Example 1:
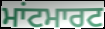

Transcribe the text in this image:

ਮਾਂਟਮਾਰਟ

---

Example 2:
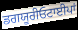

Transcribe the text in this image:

ਡਗਯੂਰੀਓਟਾਈਪਾਂ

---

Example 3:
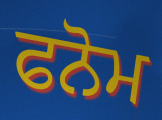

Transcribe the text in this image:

ਫਨੋਮ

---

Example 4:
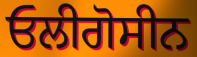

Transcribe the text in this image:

ਓਲੀਗੋਸੀਨ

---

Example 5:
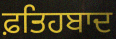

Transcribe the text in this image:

ਫ਼ਤਿਹਬਾਦ